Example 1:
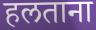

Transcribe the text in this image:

हलताना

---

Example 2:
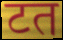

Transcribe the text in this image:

टत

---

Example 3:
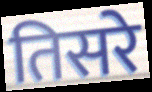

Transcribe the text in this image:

तिसरे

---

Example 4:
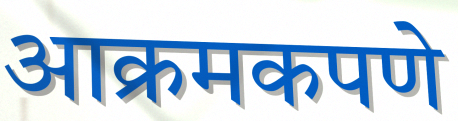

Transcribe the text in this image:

आक्रमकपणे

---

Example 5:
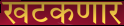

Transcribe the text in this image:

खटकणार